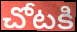
చోటకి